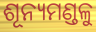
ଶୂନ୍ୟମଣ୍ଡଳୁ